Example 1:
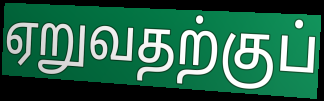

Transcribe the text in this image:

ஏறுவதற்குப்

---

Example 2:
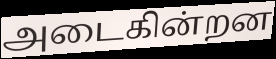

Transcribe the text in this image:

அடைகின்றன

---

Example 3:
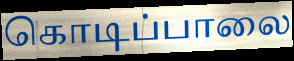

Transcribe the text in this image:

கொடிப்பாலை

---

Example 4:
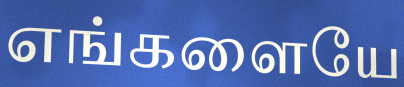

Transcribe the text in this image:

எங்களையே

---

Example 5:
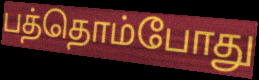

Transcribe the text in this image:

பத்தொம்போது